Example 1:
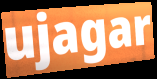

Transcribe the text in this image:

ujagar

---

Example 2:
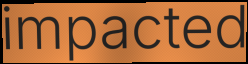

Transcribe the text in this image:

impacted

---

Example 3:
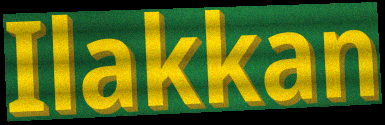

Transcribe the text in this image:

Ilakkan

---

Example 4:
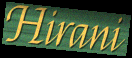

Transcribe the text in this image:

Hirani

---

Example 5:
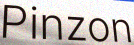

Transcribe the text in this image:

Pinzon